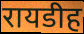
रायडीह